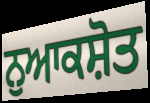
ਨੁਆਕਸ਼ੋਤ